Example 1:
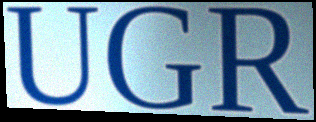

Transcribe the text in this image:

UGR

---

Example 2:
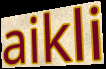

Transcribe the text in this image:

aikli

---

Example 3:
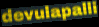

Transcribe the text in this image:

devulapalli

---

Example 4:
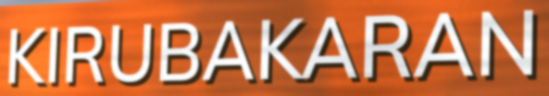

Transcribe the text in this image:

KIRUBAKARAN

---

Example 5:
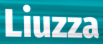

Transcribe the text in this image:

Liuzza